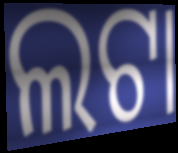
ଲଟା